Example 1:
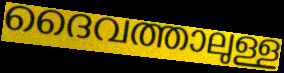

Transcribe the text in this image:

ദൈവത്താലുള്ള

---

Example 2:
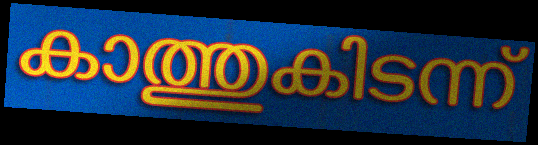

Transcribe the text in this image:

കാത്തുകിടന്ന്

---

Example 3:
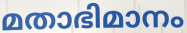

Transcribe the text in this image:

മതാഭിമാനം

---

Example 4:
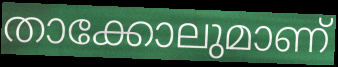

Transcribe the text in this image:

താക്കോലുമാണ്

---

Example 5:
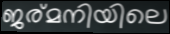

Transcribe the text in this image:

ജര്മനിയിലെ